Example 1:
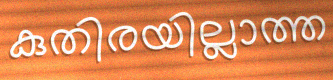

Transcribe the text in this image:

കുതിരയില്ലാത്ത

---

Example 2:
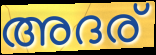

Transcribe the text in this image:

അദര്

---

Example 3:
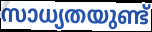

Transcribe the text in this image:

സാധ്യതയുണ്ട്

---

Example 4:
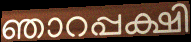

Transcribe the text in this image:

ഞാറപ്പക്ഷി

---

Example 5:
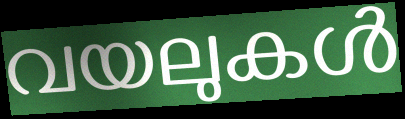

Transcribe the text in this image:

വയലുകൾ